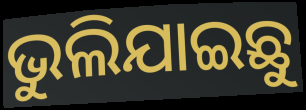
ଭୁଲିଯାଇଛୁ